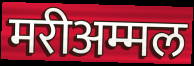
मरीअम्मल